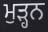
ਮੁੜ੍ਹਨ